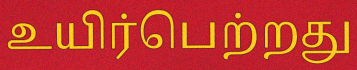
உயிர்பெற்றது